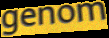
genom